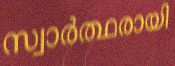
സ്വാർത്ഥരായി